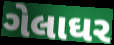
ગેલાઘર